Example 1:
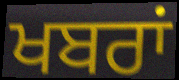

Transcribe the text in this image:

ਖਬਰਾਂ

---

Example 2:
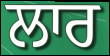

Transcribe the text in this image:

ਲਾਰ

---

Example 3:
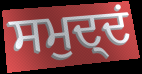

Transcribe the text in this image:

ਸਮੁਦ੍ਦਂ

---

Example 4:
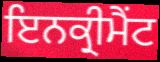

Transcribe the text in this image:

ਇਨਕ੍ਰੀਮੈਂਟ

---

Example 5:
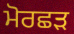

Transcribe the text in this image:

ਮੋਰਛੜ